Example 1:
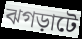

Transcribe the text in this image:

ঝগড়াটে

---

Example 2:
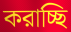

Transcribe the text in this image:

করাচ্ছি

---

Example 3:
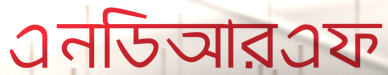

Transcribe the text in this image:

এনডিআরএফ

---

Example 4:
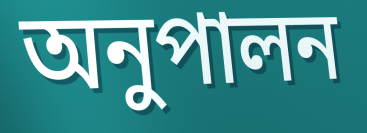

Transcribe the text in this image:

অনুপালন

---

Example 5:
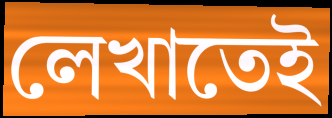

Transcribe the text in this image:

লেখাতেই